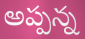
అప్పన్న